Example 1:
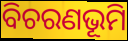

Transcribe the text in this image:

ବିଚରଣଭୂମି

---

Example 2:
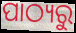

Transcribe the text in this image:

ପାଠ୍ୟରୁ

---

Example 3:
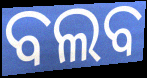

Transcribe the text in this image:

ବଲବ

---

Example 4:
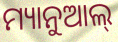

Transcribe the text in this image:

ମ୍ୟାନୁଆଲ୍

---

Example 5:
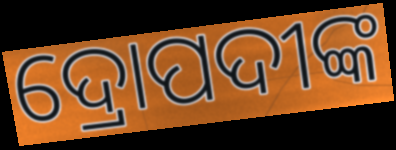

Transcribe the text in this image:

ଦ୍ରୋପଦୀଙ୍କ